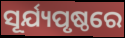
ସୂର୍ଯ୍ୟପୃଷ୍ଠରେ